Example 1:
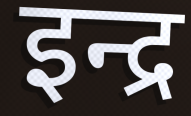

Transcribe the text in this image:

इन्द्र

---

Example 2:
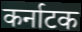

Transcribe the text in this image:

कर्नाटक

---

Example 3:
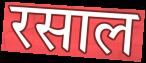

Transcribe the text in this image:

रसाल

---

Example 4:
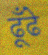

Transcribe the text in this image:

ढूँढे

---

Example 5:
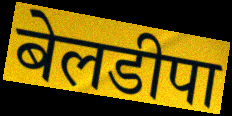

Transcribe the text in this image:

बेलडीपा